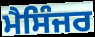
ਮੈਸਿੰਜਰ